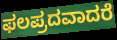
ಫಲಪ್ರದವಾದರೆ